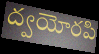
ద్వయోరపి